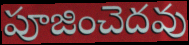
పూజించెదవు